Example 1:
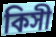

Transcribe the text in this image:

কিসী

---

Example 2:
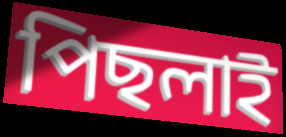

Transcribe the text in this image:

পিছলাই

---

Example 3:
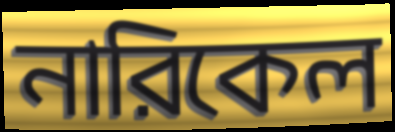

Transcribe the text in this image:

নারিকেল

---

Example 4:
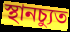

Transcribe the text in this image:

স্থানচ্যুত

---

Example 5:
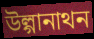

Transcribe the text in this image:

উল্গানাথন